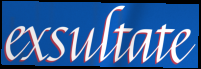
exsultate